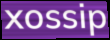
xossip